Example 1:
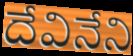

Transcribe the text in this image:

దేవినేని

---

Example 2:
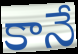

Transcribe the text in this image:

కానే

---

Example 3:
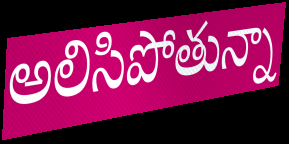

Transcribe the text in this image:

అలిసిపోతున్నా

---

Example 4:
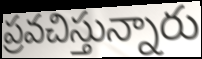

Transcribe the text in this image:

ప్రవచిస్తున్నారు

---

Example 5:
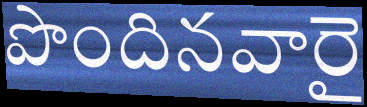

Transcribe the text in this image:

పొందినవారై